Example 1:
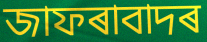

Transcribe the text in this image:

জাফৰাবাদৰ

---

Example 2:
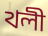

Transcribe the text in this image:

থলী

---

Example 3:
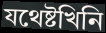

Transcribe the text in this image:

যথেষ্টখিনি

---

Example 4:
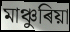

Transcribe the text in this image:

মাঞ্চুৰিয়া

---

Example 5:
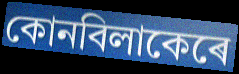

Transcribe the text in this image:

কোনবিলাকেৰে